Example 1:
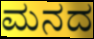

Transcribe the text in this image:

ಮನದ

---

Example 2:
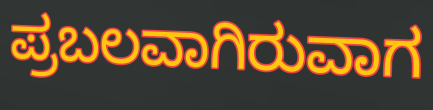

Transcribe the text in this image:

ಪ್ರಬಲವಾಗಿರುವಾಗ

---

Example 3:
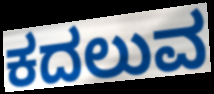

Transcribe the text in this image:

ಕದಲುವ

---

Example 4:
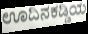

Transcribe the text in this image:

ಊದಿನಕಡ್ಡಿಯ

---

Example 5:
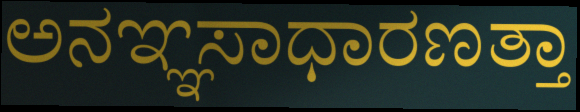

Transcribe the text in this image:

ಅನಞ್ಞಸಾಧಾರಣತ್ತಾ